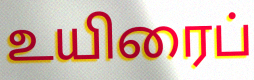
உயிரைப்